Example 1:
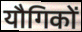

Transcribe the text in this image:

यौगिकों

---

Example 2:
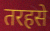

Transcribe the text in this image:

तरहसे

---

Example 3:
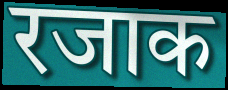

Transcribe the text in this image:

रजाक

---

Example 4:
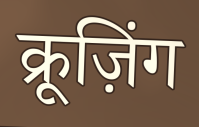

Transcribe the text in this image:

क्रूज़िंग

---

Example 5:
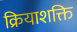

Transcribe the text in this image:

क्रियाशक्ति